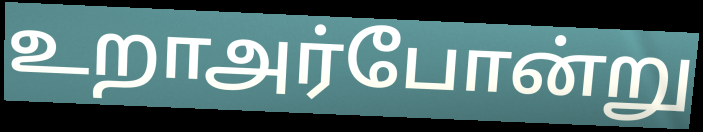
உறாஅர்போன்று